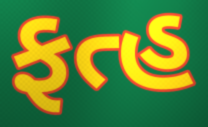
ફત્હ